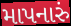
માપનારું